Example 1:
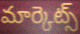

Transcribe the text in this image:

మార్కెట్స్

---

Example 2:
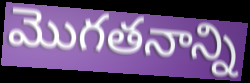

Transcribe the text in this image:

మొగతనాన్ని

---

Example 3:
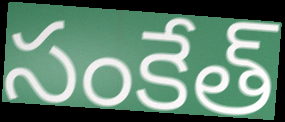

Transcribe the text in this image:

సంకేత్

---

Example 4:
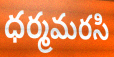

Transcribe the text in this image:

ధర్మమరసి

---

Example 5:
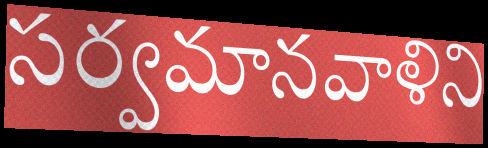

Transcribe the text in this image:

సర్వమానవాళిని